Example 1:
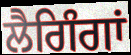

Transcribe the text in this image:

ਲੈਗਿੰਗਾਂ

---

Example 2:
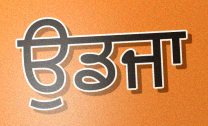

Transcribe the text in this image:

ਉਡਜਾ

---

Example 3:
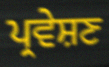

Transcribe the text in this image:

ਪ੍ਰਵੇਸ਼ਣ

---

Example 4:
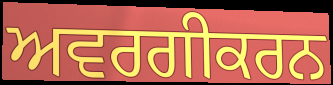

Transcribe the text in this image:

ਅਵਰਗੀਕਰਨ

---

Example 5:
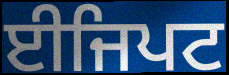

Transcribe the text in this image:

ਈਜਿਪਟ